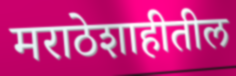
मराठेशाहीतील